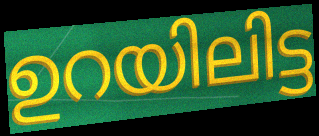
ഉറയിലിട്ട